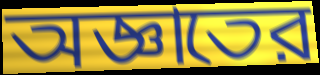
অজ্ঞাতের